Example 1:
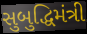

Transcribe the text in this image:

સુબુદ્ધિમંત્રી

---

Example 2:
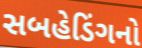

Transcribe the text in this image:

સબહેડિંગનો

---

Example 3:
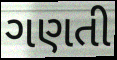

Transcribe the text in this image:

ગણતી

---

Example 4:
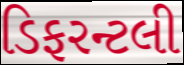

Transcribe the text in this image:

ડિફરન્ટલી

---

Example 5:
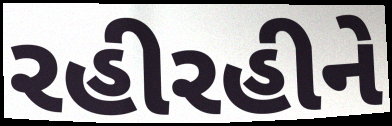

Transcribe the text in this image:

રહીરહીને